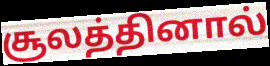
சூலத்தினால்